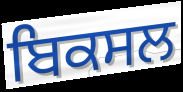
ਬਿਕਸਲ